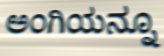
ಅಂಗಿಯನ್ನೂ